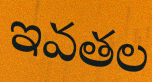
ఇవతల